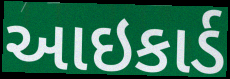
આઇકાર્ડ